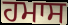
ਹਮਾਸ